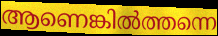
ആണെങ്കിൽത്തന്നെ